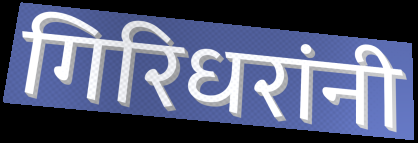
गिरिधरांनी